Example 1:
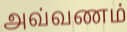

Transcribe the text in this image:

அவ்வணம்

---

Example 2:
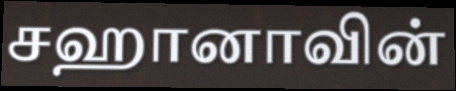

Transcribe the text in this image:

சஹானாவின்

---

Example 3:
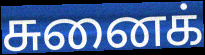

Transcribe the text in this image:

சுனைக்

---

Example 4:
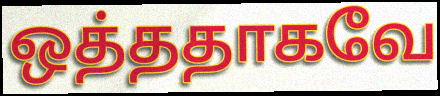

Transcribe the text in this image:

ஒத்ததாகவே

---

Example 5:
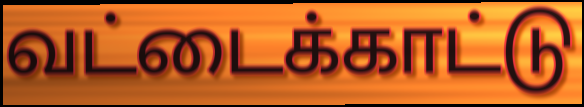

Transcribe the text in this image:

வட்டைக்காட்டு